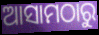
ଆସାମଠାରୁ